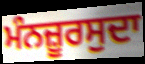
ਮੰਨਜ਼ੂਰਸੁਦਾ